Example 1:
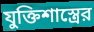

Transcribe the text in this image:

যুক্তিশাস্ত্রের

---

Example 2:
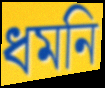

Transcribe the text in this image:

ধমনি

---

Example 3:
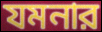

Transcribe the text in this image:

যমনার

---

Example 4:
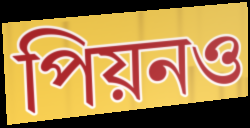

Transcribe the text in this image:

পিয়নও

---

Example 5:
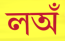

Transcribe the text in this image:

লঅঁ